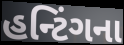
હન્ટિંગના